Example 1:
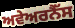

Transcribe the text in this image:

ਅਵੇਅਰਨੈੱਸ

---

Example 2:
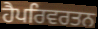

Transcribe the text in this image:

ਹੈਪਰਿਵਰਤਨ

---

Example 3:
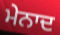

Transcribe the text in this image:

ਮੇਨਾਦ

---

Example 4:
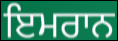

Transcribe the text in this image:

ਇਮਰਾਨ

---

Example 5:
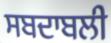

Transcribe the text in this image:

ਸਬਦਾਬਲੀ